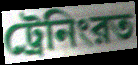
ট্রেনিংরত